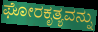
ಘೋರಕೃತ್ಯವನ್ನು